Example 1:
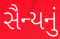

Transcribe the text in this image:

સૈન્યનું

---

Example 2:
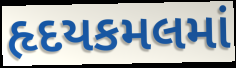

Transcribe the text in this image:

હૃદયકમલમાં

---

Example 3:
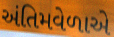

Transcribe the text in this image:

અંતિમવેળાએ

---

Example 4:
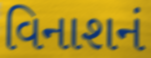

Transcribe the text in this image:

વિનાશનં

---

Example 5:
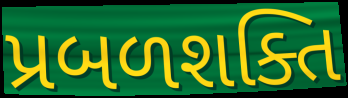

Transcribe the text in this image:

પ્રબળશક્તિ